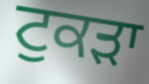
ਟੁਕਡ਼ਾ